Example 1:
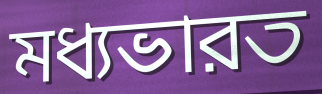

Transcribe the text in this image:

মধ্যভারত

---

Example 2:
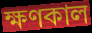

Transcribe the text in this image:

ক্ষণকাল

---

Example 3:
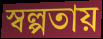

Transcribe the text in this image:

স্বল্পতায়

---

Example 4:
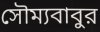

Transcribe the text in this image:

সৌম্যবাবুর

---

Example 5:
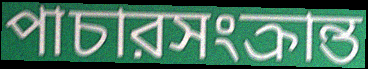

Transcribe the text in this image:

পাচারসংক্রান্ত